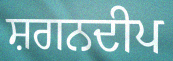
ਸ਼ਗਨਦੀਪ